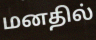
மனதில்